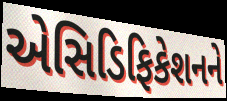
એસિડિફિકેશનને